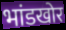
भांडखोर